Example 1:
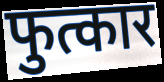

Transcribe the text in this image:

फुत्कार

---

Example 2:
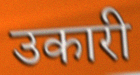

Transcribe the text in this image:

उकारी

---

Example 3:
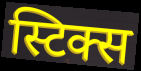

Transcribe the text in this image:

स्टिक्स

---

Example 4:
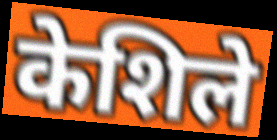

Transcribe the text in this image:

केशिले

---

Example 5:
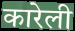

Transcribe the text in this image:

कारेली